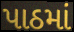
પાઠમાં